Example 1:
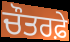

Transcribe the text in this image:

ਚੌਤਰਫ਼ੇ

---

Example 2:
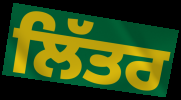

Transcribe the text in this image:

ਲਿੱਤਰ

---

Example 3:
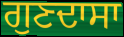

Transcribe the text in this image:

ਗੁਣਦਾਸਾ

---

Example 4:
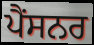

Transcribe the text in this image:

ਪੈਂਸਨਰ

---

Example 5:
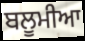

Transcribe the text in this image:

ਬਲੂਮੀਆ